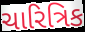
ચારિત્રિક